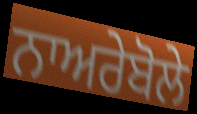
ਨਾਅਰੇਬੋਲੇ